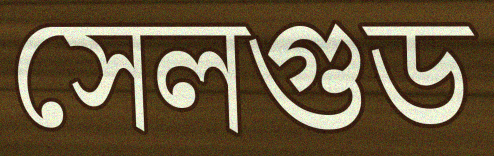
সেলগুড